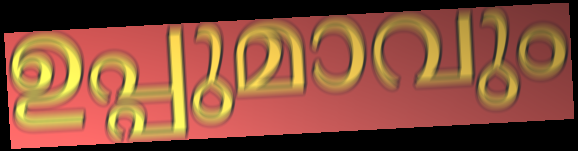
ഉപ്പുമാവും